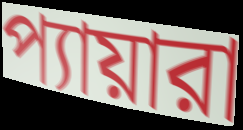
প্যায়ারা